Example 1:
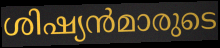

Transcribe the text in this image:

ശിഷ്യൻമാരുടെ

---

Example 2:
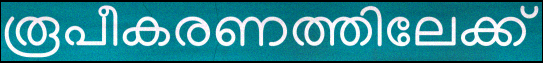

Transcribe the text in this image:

രൂപീകരണത്തിലേക്ക്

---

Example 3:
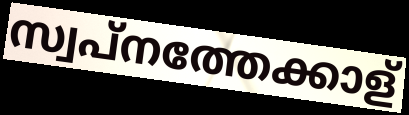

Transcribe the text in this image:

സ്വപ്നത്തേക്കാള്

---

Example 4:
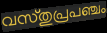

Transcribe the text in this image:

വസ്തുപ്രപഞ്ചം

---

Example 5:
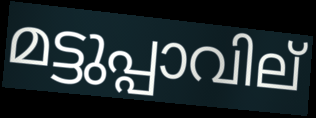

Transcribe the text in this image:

മട്ടുപ്പാവില്